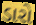
ડારો